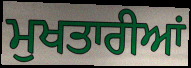
ਮੁਖਤਾਰੀਆਂ